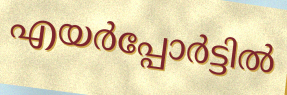
എയർപ്പോർട്ടിൽ